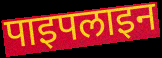
पाइपलाइन